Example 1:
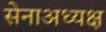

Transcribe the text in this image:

सेनाअध्यक्ष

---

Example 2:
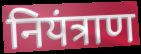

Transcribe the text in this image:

नियंत्राण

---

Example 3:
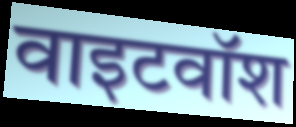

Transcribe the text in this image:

वाइटवॉश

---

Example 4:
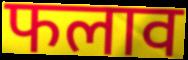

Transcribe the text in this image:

फलाव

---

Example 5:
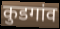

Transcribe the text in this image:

कुडगांव